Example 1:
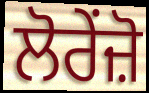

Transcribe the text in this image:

ਲੋਰੇਂਜ਼ੋ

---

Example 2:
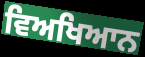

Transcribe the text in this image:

ਵਿਅਖਿਆਨ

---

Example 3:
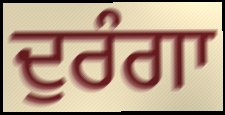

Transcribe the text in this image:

ਦੁਰੰਗਾ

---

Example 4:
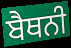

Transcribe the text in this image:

ਬੈਥਨੀ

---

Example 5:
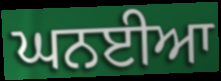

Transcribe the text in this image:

ਘਨਈਆ